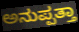
ಅನುಪ್ಪತ್ತಾ